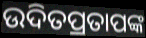
ଉଦିତପ୍ରତାପଙ୍କ